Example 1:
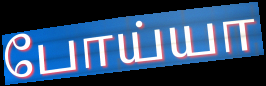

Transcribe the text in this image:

போய்யா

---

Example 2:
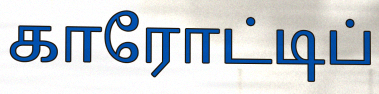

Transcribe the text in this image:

காரோட்டிப்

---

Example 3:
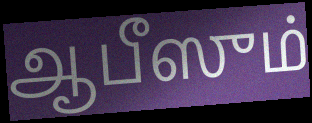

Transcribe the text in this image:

ஆபீஸும்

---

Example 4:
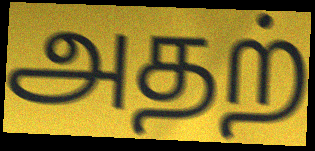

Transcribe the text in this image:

அதற்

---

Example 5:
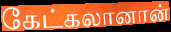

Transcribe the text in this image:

கேட்கலானான்